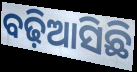
ବଢ଼ିଆସିଛି